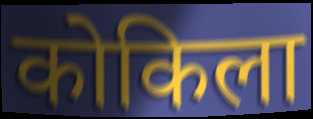
कोकिला